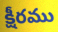
క్షీరము